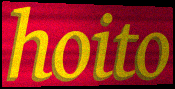
hoito